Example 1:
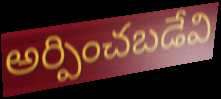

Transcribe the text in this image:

అర్పించబడేవి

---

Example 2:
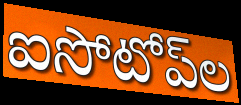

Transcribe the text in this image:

ఐసోటోప్‌ల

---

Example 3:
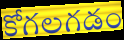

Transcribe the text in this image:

కోగలగడం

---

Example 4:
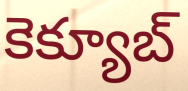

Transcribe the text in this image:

కెక్యూబ్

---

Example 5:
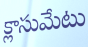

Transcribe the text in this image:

క్లాసుమేటు